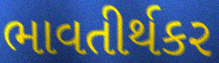
ભાવતીર્થકર